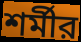
শর্মীর